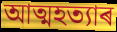
আত্মহত্যাৰ